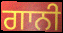
ਗਾਨੀ